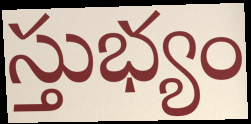
స్తుభ్యం